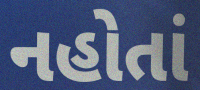
નહોતાં